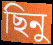
ছিনু